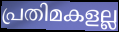
പ്രതിമകളല്ല